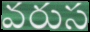
వరుస